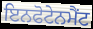
ਇਨਫੋਟੇਨਮੈਂਟ